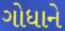
ગોધાને